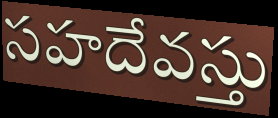
సహదేవస్తు